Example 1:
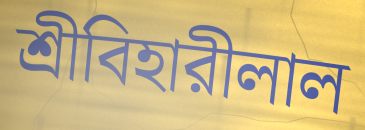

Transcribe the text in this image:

শ্রীবিহারীলাল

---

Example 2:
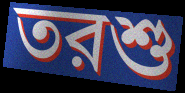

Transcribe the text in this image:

তরশু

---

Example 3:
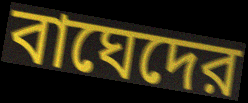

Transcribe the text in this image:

বাঘেদের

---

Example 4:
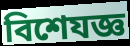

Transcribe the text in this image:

বিশেযজ্ঞ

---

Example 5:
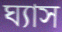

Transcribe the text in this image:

ঘ্যাস